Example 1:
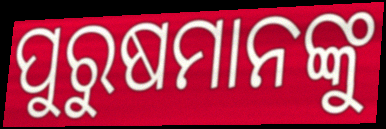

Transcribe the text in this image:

ପୁରୁଷମାନଙ୍କୁ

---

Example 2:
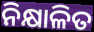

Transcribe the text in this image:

ନିକ୍ଷାଳିତ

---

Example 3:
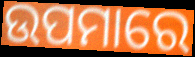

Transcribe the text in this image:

ଉପମାରେ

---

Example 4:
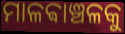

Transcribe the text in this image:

ମାଳଵାଞ୍ଚଳକୁ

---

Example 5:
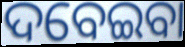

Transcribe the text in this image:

ଦବେଇବା